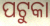
ପଟୁକା